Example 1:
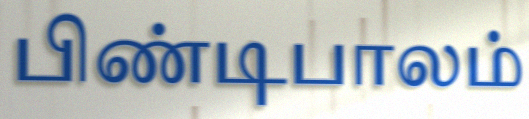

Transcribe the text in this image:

பிண்டிபாலம்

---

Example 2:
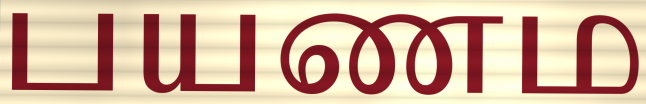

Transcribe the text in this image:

பயணம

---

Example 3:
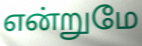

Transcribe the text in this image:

என்றுமே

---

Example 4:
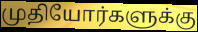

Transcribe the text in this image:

முதியோர்களுக்கு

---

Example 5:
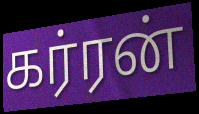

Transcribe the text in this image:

கர்ரன்